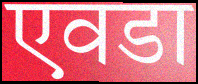
एवडा